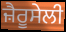
ਜ਼ੈਰੂਸੇਲੀ